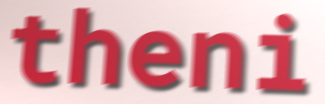
theni